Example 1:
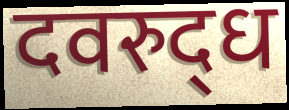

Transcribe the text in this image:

दवरुद्ध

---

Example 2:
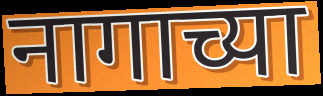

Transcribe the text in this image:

नागाच्या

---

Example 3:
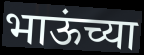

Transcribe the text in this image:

भाऊंच्या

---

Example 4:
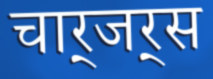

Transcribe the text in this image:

चार्जर्स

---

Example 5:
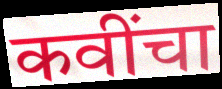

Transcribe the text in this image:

कवींचा